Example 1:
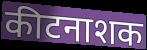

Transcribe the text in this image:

कीटनाशक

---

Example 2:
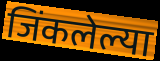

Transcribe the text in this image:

जिंकलेल्या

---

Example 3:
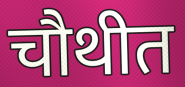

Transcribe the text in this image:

चौथीत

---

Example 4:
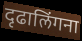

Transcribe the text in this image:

दृढालिंगना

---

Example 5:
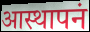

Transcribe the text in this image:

आस्थापनं